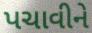
પચાવીને